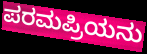
ಪರಮಪ್ರಿಯನು